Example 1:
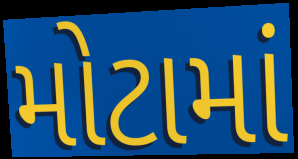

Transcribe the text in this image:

મોટામાં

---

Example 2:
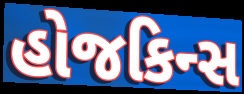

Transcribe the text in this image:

હોજકિન્સ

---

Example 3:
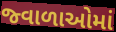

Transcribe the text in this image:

જ્વાળાઓમાં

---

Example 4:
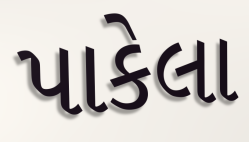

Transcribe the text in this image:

પાકેલા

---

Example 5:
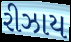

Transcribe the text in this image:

રીઝાય